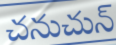
చనుచున్